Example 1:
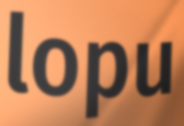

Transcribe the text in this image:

lopu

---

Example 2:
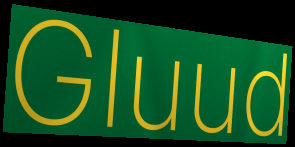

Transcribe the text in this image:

Gluud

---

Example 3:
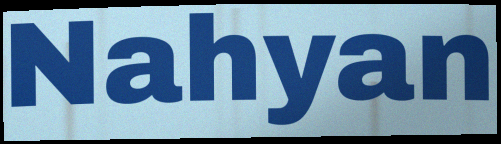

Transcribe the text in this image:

Nahyan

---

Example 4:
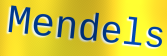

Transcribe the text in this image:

Mendels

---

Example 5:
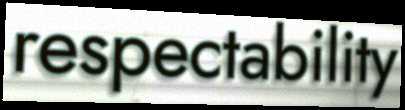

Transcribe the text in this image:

respectability